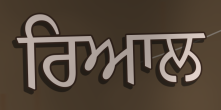
ਰਿਆਲ